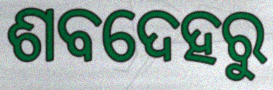
ଶବଦେହରୁ